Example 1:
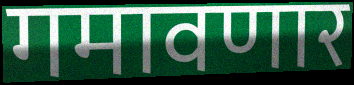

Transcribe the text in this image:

गमावणार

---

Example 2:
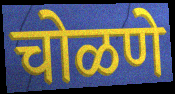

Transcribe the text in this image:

चोळणे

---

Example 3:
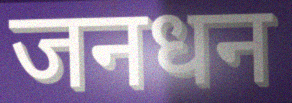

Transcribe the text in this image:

जनधन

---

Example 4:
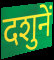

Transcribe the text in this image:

दशुनें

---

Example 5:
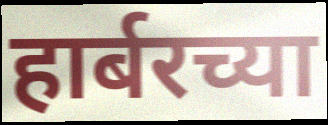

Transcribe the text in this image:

हार्बरच्या